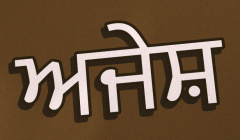
ਅਜੇਸ਼